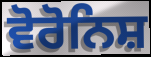
ਵੋਰੋਨਿਸ਼